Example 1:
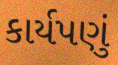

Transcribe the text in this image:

કાર્યપણું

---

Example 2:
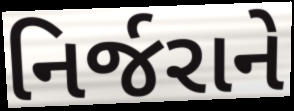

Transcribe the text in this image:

નિર્જરાને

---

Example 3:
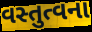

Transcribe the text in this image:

વસ્તુત્વના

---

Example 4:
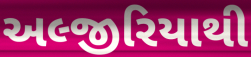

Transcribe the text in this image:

અલ્જીરિયાથી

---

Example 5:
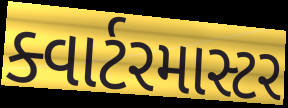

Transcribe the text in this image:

ક્વાર્ટરમાસ્ટર